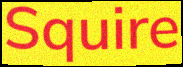
Squire